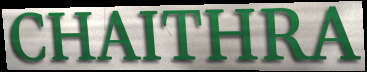
CHAITHRA